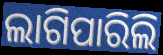
ଲାଗିପାରିଲି